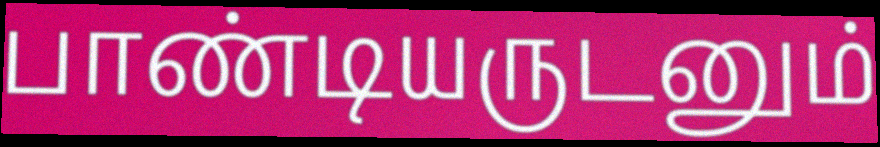
பாண்டியருடனும்